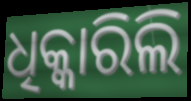
ଧିକ୍କାରିଲି